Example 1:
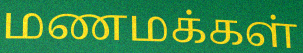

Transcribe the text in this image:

மணமக்கள்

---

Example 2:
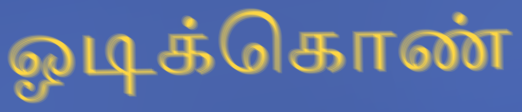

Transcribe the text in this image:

ஓடிக்கொண்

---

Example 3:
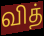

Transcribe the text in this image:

வித்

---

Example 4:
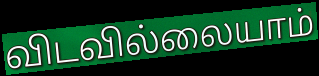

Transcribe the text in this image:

விடவில்லையாம்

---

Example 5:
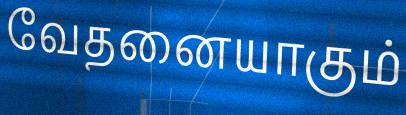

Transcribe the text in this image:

வேதனையாகும்